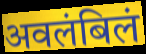
अवलंबिलं